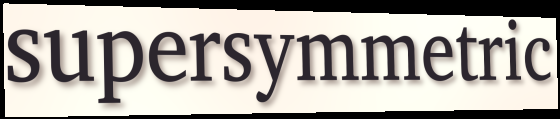
supersymmetric